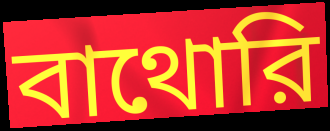
বাথোরি